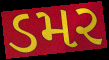
ડમર